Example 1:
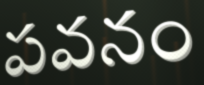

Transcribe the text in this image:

పవనం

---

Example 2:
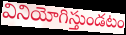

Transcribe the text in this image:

వినియోగిస్తుండటం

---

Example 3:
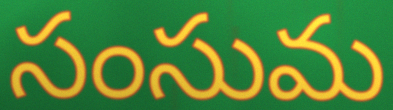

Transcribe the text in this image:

సంసుమ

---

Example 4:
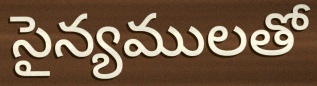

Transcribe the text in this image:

సైన్యములతో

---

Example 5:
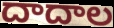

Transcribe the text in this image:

దాదాల